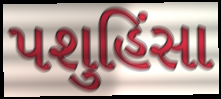
પશુહિંસા